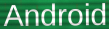
Android